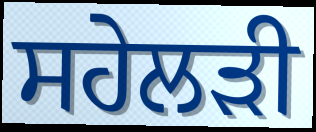
ਸਹੇਲੜੀ